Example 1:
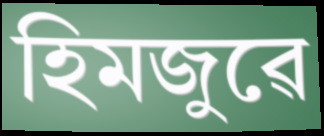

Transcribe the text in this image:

হিমজুৱে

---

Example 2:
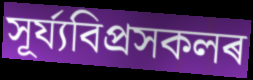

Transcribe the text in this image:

সূৰ্য্যবিপ্ৰসকলৰ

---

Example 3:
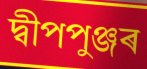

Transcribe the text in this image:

দ্বীপপুঞ্জৰ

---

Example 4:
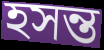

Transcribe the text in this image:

হসন্ত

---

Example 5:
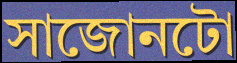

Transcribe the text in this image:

সাজোনটো